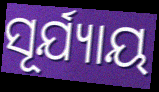
ସୂର୍ଯ୍ୟାୟ